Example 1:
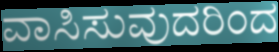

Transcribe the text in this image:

ವಾಸಿಸುವುದರಿಂದ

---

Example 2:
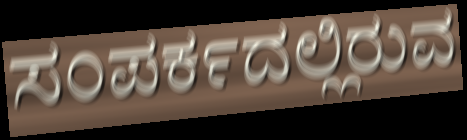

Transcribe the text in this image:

ಸಂಪರ್ಕದಲ್ಲಿರುವ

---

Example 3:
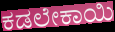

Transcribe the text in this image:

ಕಡಲೇಕಾಯಿ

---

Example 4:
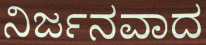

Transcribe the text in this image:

ನಿರ್ಜನವಾದ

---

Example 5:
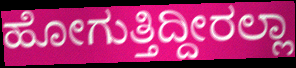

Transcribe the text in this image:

ಹೋಗುತ್ತಿದ್ದೀರಲ್ಲಾ